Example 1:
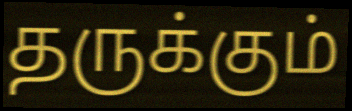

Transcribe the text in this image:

தருக்கும்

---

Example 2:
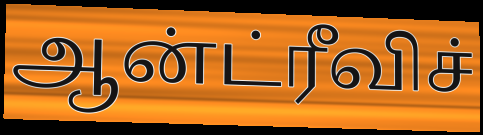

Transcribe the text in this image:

ஆன்ட்ரீவிச்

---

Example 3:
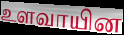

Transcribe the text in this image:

உளவாயின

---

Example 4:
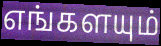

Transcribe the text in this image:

எங்களயும்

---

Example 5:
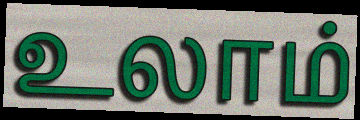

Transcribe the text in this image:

உலாம்